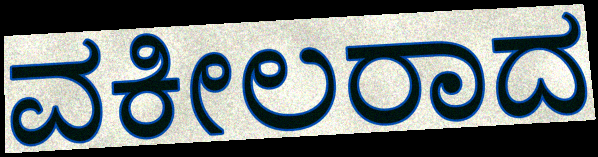
ವಕೀಲರಾದ